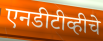
एनडीटीव्हीचे